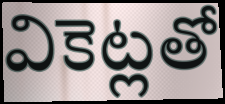
వికెట్లతో